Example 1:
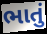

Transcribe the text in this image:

ભાતું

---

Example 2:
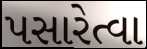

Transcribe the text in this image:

પસારેત્વા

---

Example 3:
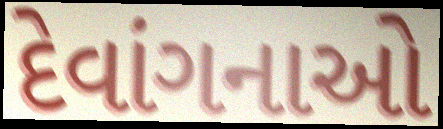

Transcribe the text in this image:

દેવાંગનાઓ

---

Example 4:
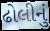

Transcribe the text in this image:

ઢોલીનું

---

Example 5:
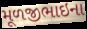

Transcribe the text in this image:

મૂળજીભાઇના